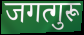
जगत्गुरू